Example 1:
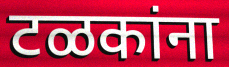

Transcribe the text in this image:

टळकांना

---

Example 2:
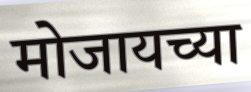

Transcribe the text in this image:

मोजायच्या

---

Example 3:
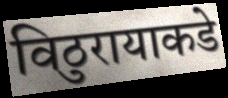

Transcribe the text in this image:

विठुरायाकडे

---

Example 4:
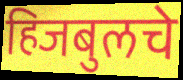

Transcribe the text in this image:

हिजबुलचे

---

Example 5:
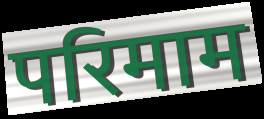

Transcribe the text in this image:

परिमाम